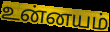
உன்னயம்